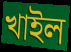
খাইল